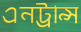
এনট্রান্স